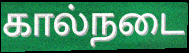
கால்நடை